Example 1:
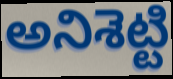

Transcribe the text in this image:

అనిశెట్టి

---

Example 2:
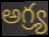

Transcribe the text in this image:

అగ్ర్య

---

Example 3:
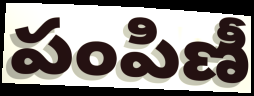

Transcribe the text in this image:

పంపిణీ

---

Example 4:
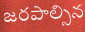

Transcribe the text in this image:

జరపాల్సిన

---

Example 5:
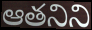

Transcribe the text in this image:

ఆతనిని